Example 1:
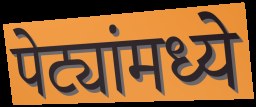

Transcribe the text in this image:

पेट्यांमध्ये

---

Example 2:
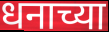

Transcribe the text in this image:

धनाच्या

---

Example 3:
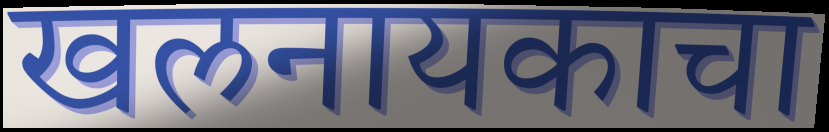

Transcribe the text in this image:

खलनायकाचा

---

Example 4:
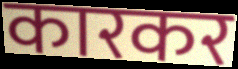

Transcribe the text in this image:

कारकर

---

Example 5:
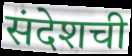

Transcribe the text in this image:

संदेशची